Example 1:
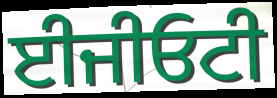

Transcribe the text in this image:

ਈਜੀਓਟੀ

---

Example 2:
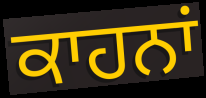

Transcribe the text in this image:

ਕਾਹਨਾਂ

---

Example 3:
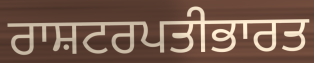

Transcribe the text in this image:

ਰਾਸ਼ਟਰਪਤੀਭਾਰਤ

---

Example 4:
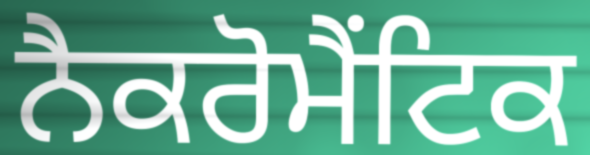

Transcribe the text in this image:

ਨੈਕਰੋਮੈਂਟਿਕ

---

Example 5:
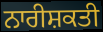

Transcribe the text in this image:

ਨਾਰੀਸ਼ਕਤੀ